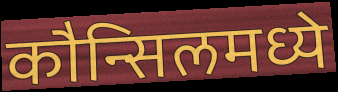
कौन्सिलमध्ये